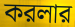
করলার